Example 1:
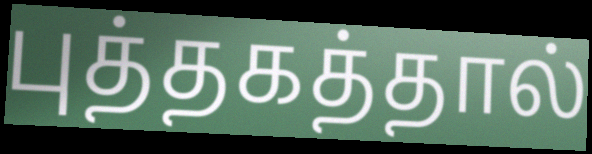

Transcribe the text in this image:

புத்தகத்தால்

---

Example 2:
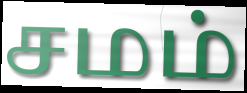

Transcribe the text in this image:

சமம்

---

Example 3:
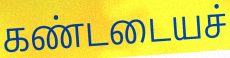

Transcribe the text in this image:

கண்டடையச்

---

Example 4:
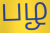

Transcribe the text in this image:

பழ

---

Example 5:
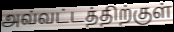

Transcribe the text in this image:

அவ்வட்டத்திற்குள்